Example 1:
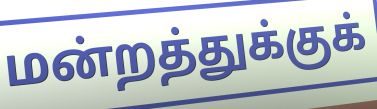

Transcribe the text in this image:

மன்றத்துக்குக்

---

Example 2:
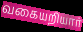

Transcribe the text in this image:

வகையறியார்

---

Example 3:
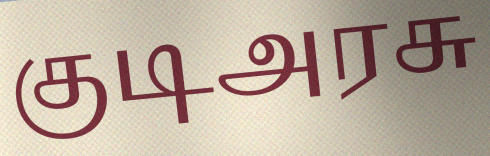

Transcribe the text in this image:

குடிஅரசு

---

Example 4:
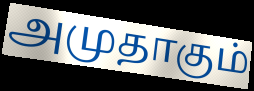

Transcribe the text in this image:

அமுதாகும்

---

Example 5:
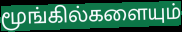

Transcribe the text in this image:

மூங்கில்களையும்